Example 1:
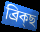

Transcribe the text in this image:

ব্ৰিক্ছ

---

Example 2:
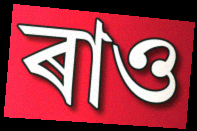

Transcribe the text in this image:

ৰাও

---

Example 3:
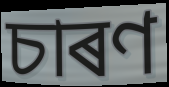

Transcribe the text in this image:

চাৰণ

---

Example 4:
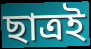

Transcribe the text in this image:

ছাত্ৰই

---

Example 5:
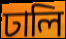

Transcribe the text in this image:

ঢালি